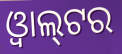
ଓ୍ୱାଲ୍‍ଟର